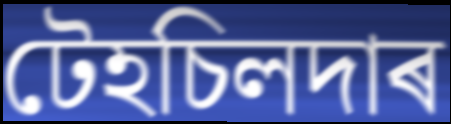
টেহচিলদাৰ